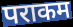
पराकम